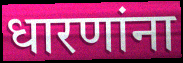
धारणांना